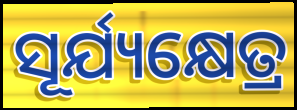
ସୂର୍ଯ୍ୟକ୍ଷେତ୍ର